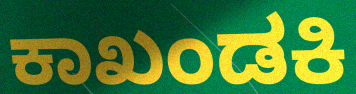
ಕಾಖಂಡಕಿ